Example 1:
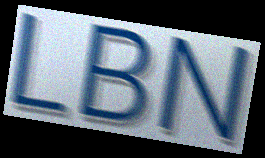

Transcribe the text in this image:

LBN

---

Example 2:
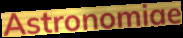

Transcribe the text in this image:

Astronomiae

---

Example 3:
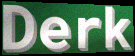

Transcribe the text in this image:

Derk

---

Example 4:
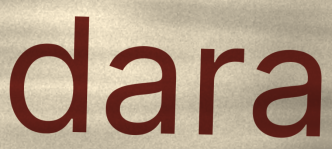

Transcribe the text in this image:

dara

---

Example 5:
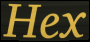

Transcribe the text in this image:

Hex